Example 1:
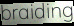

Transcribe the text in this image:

braiding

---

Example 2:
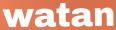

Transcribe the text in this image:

watan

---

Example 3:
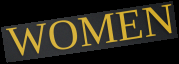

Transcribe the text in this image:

WOMEN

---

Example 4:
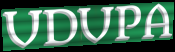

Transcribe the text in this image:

UDUPA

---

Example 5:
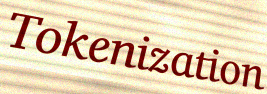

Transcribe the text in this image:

Tokenization